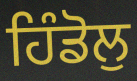
ਹਿੰਡੋਲੁ